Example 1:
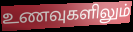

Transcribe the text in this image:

உணவுகளிலும்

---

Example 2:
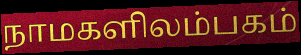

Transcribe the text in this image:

நாமகளிலம்பகம்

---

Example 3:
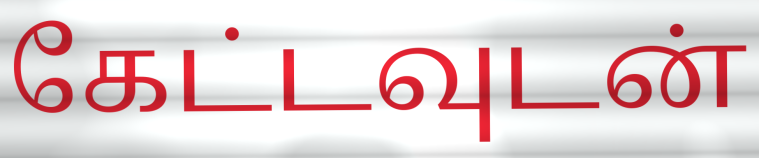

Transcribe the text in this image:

கேட்டவுடன்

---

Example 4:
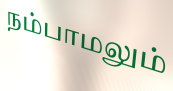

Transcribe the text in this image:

நம்பாமலும்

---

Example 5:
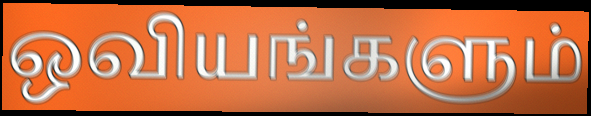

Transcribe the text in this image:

ஒவியங்களும்